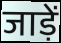
जाड़ें